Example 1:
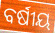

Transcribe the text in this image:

ବର୍ଷୀୟ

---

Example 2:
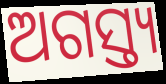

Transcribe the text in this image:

ଅଗସ୍ତ୍ୟ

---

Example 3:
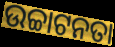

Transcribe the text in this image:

ଉଚ୍ଚାଟନତା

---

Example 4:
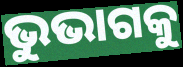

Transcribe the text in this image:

ଭୁଭାଗକୁ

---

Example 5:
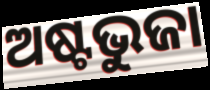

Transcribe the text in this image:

ଅଷ୍ଟଭୁଜା